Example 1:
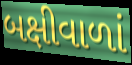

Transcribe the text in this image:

બક્ષીવાળાં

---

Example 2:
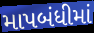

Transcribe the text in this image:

માપબંધીમાં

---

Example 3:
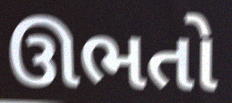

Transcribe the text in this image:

ઊભતો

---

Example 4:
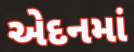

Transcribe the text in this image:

એદનમાં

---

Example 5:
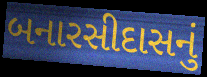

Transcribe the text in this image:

બનારસીદાસનું